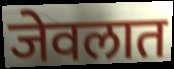
जेवलात